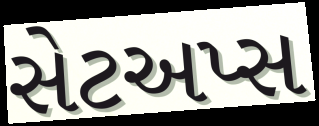
સેટઅપ્સ